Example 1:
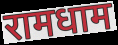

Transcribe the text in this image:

रामधाम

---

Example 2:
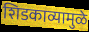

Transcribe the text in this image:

शिडकाव्यामुळे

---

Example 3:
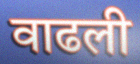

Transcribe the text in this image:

वाढली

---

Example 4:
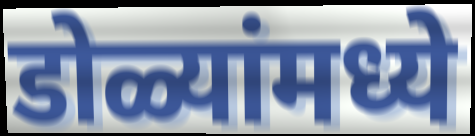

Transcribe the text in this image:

डोळ्यांमध्ये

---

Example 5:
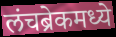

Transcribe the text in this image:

लंचब्रेकमध्ये